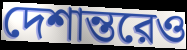
দেশান্তরেও